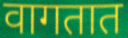
वागतात